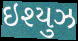
ઇશ્યુઝ